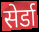
सेर्डा